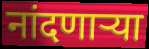
नांदणाऱ्या